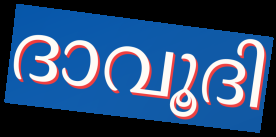
ദാവൂദി